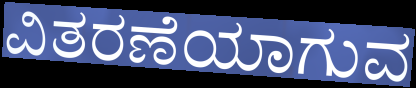
ವಿತರಣೆಯಾಗುವ